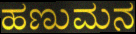
ಹಣುಮನ